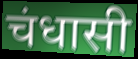
चंधासी